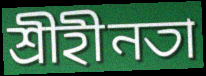
শ্রীহীনতা